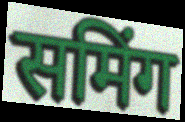
समिंग